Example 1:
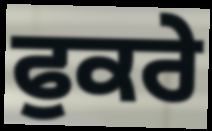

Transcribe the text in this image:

ਫੁਕਰੇ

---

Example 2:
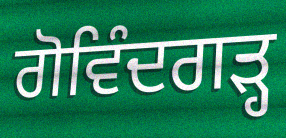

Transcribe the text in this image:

ਗੋਵਿੰਦਗੜ੍ਹ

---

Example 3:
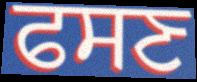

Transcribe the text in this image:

ਫਸਣ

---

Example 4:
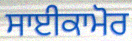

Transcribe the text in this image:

ਸਾਈਕਾਮੋਰ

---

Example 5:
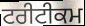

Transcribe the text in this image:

ਟਰੀਟੀਕਮ